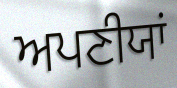
ਅਪਣੀਯਾਂ